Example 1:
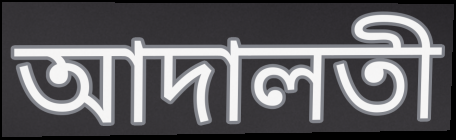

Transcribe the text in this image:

আদালতী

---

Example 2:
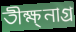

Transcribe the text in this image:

তীক্ষ্নাগ্র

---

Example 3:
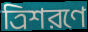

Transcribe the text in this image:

ত্রিশরণে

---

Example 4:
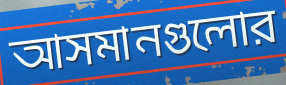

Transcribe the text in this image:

আসমানগুলোর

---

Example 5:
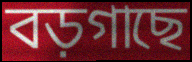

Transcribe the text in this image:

বড়গাছে